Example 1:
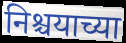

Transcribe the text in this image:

निश्चयाच्या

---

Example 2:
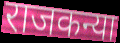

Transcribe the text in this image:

राजकन्या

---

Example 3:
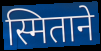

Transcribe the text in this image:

स्मिताने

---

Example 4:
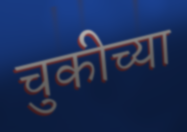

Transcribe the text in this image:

चुकीच्या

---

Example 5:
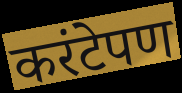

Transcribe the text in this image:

करंटेपण